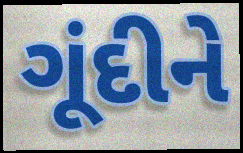
ગૂંદીને